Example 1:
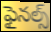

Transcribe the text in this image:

ఫైనల్స్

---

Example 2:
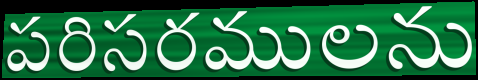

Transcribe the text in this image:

పరిసరములను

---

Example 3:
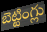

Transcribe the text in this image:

బెట్టింగ్లు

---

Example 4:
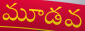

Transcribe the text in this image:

మూడవ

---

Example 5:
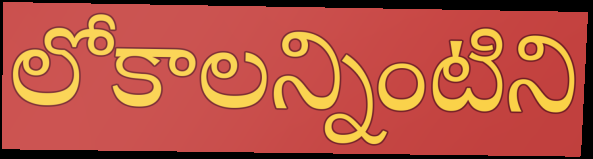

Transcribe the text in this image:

లోకాలన్నింటిని